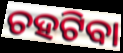
ଚହଟିବା